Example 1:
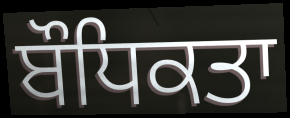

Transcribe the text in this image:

ਬੌਧਿਕਤਾ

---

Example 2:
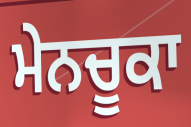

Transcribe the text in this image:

ਮੇਨਚੂਕਾ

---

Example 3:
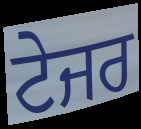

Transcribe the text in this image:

ਟੇਜਰ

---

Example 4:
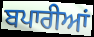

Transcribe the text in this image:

ਬਪਾਰੀਆਂ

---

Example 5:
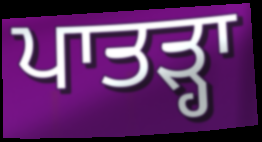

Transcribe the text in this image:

ਪਾਤੜ੍ਹਾ